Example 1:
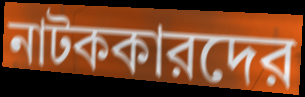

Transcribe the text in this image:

নাটককারদের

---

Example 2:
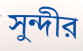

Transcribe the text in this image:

সুন্দীর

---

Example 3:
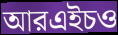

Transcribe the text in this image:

আরএইচও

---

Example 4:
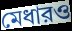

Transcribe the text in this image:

মেধারও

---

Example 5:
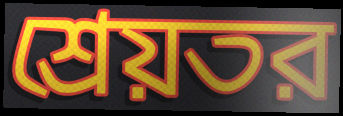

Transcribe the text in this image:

শ্রেয়তর